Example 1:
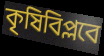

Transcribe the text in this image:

কৃষিবিপ্লবে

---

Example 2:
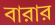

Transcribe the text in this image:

বারার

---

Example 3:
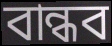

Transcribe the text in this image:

বান্ধব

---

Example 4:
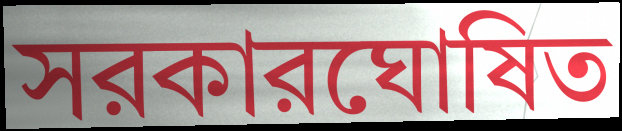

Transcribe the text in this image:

সরকারঘোষিত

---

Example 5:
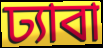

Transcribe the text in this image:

ঢ্যাবা